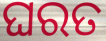
ଘରତ